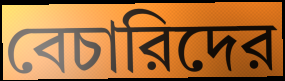
বেচারিদের